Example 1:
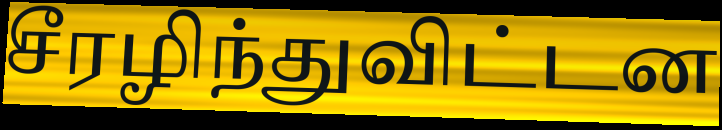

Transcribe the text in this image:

சீரழிந்துவிட்டன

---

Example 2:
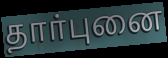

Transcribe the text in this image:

தார்புனை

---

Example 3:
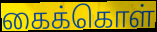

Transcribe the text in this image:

கைக்கொள்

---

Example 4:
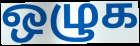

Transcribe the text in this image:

ஒழுக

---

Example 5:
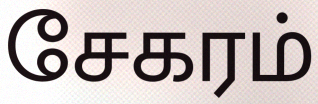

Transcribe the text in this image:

சேகரம்